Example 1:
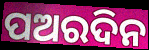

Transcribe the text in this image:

ପଅରଦିନ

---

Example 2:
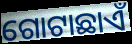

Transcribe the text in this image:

ଗୋଟାଛାଏଁ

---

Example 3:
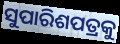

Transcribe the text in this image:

ସୁପାରିଶପତ୍ରକୁ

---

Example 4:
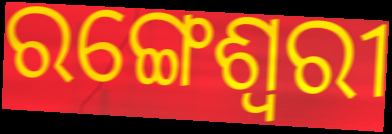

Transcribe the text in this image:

ରଙ୍ଗେଶ୍ୱରୀ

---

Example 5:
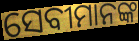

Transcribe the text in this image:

ସେବୀମାନଙ୍କ